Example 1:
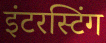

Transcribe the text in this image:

इंटरस्टिंग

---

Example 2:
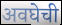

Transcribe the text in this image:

अवघेची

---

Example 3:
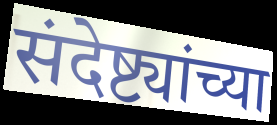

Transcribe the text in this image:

संदेष्ट्यांच्या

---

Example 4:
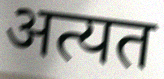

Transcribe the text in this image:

अत्यत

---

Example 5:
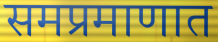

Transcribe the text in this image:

समप्रमाणात